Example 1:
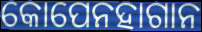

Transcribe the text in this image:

କୋପେନହାଗାନ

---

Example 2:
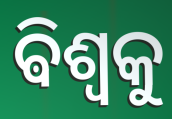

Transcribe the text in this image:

ଵିଶ୍ଵକୁ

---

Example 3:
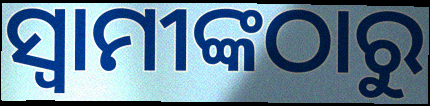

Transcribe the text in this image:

ସ୍ବାମୀଙ୍କଠାରୁ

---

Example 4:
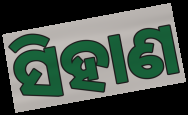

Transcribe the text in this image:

ସିହାଣ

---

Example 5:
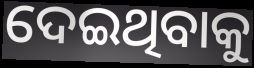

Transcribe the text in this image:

ଦେଇଥିବାକୁ